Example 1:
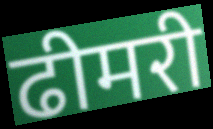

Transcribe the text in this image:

ढीमरी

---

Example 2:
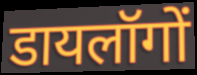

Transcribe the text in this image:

डायलॉगों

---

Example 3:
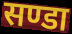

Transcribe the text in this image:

सण्डा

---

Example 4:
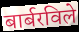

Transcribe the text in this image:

बार्बरविले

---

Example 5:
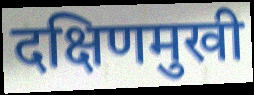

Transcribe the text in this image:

दक्षिणमुखी